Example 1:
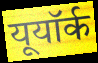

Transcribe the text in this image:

यूयॉर्क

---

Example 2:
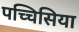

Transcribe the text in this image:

पच्चिसिया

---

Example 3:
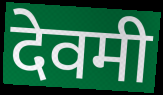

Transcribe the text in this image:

देवमी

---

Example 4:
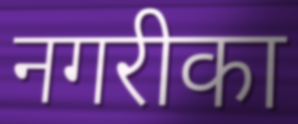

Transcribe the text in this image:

नगरीका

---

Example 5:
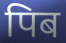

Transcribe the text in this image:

पिब